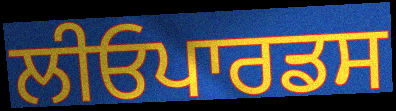
ਲੀਓਪਾਰਡਸ